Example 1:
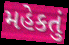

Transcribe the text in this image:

મહેકતું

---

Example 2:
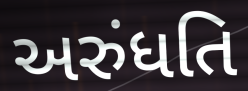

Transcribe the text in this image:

અરુંધતિ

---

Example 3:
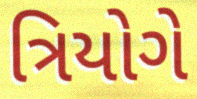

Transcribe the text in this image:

ત્રિયોગે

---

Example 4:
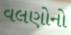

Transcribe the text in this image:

વલણોનો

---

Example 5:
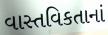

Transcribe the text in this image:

વાસ્તવિકતાનાં